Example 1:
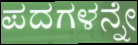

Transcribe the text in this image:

ಪದಗಳನ್ನೇ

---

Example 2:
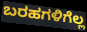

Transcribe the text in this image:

ಬರಹಗಳಿಗೆಲ್ಲ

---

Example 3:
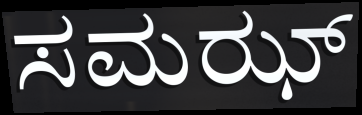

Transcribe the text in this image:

ಸಮಝ್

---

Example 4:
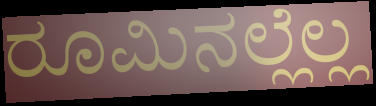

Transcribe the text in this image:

ರೂಮಿನಲ್ಲೆಲ್ಲ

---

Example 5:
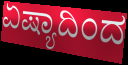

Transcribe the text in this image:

ಏಷ್ಯಾದಿಂದ